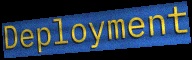
Deployment